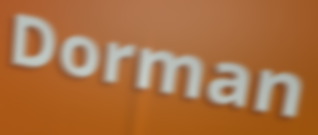
Dorman